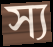
স্য